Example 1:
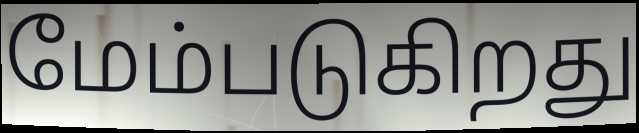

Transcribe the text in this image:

மேம்படுகிறது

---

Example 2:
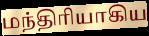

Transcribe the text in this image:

மந்திரியாகிய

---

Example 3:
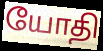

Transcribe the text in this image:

யோதி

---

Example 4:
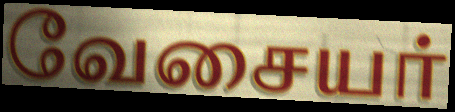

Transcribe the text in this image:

வேசையர்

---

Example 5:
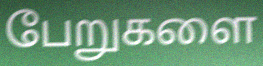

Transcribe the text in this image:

பேறுகளை